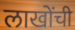
लाखोंची